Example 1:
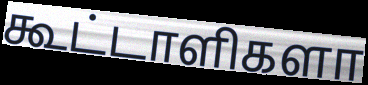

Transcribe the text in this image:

கூட்டாளிகளா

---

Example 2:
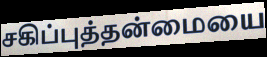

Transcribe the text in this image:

சகிப்புத்தன்மையை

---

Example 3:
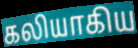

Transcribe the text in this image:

கலியாகிய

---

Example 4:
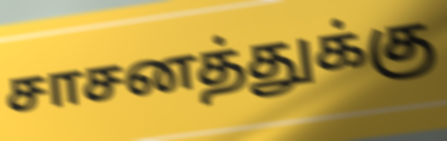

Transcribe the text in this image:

சாசனத்துக்கு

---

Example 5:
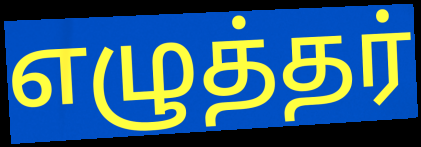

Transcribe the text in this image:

எழுத்தர்